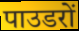
पाउडरों